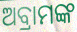
ଅବ୍ରାମଙ୍କ